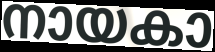
നായകാ